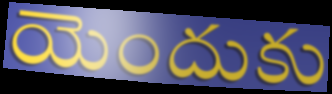
యెందుకు